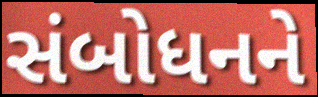
સંબોધનને